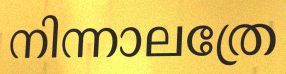
നിന്നാലത്രേ